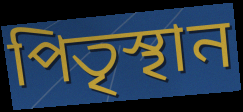
পিতৃস্থান